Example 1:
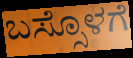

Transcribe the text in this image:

ಬಸ್ಸೊಳಗೆ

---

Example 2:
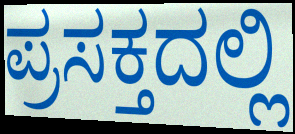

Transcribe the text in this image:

ಪ್ರಸಕ್ತದಲ್ಲಿ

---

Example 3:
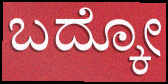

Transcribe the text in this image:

ಬದ್ಕೋ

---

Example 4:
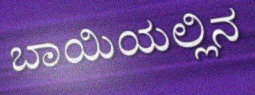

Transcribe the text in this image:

ಬಾಯಿಯಲ್ಲಿನ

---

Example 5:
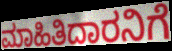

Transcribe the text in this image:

ಮಾಹಿತಿದಾರನಿಗೆ